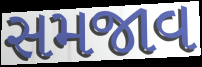
સમજાવ